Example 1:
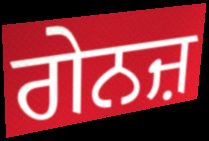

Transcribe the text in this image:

ਗੇਨਜ਼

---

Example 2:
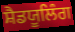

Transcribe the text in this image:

ਸ਼ੈਡਯੂਲਿੰਗ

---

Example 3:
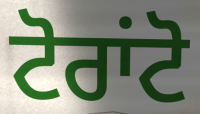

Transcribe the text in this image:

ਟੋਰਾਂਟੋ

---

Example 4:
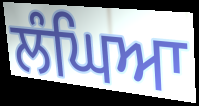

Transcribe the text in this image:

ਲੰਘਿਆ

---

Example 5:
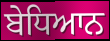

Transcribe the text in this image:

ਬੇਧਿਆਨ